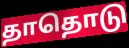
தாதொடு